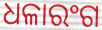
ଧଳାରଂଗ